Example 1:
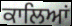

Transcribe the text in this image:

ਕਾਲਿਆਂ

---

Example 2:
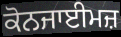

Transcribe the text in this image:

ਕੋਨਜਾਈਮਜ਼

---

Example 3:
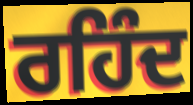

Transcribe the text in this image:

ਰਹਿੰਦ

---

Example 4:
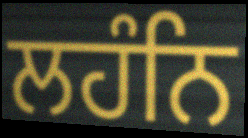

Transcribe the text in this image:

ਲਹੰਨਿ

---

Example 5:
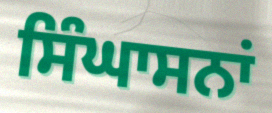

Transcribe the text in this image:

ਸਿੰਘਾਸਨਾਂ